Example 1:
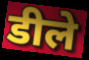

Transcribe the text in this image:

डीले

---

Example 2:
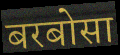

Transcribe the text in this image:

बरबोसा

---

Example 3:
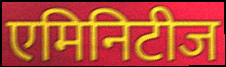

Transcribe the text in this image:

एमिनिटीज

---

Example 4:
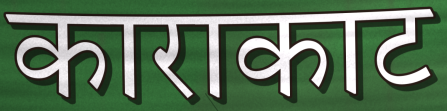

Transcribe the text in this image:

काराकाट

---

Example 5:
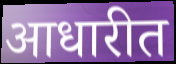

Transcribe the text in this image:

आधारीत